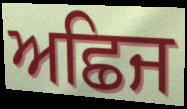
ਅਛਿਜ